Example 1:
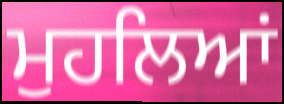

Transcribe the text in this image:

ਮੁਹਲਿਆਂ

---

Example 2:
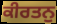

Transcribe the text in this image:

ਕੀਰਤਨੁ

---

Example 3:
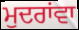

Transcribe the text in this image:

ਮੁਦਰਾਂਵਾ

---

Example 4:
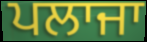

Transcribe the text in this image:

ਪਲਾਜਾ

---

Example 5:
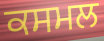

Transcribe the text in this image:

ਕਸਮਲ